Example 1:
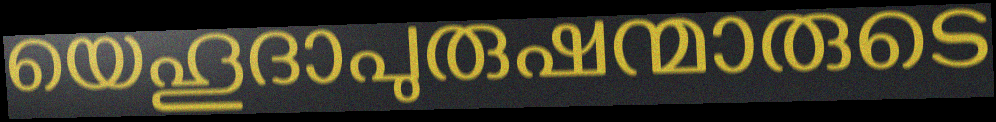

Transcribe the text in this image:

യെഹൂദാപുരുഷന്മാരുടെ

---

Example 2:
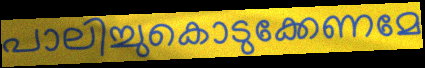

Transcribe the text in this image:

പാലിച്ചുകൊടുക്കേണമേ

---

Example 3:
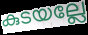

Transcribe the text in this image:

കുടയല്ലേ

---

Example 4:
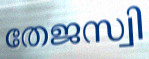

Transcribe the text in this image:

തേജസ്വി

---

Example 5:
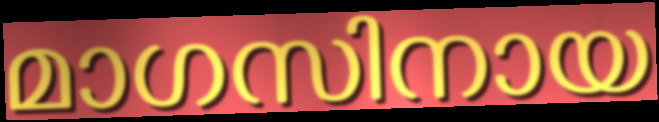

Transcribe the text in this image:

മാഗസിനായ